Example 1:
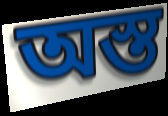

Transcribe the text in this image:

অস্ত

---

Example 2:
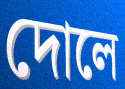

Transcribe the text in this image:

দোলে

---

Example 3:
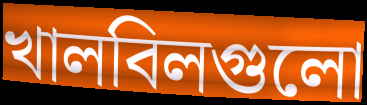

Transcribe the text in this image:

খালবিলগুলো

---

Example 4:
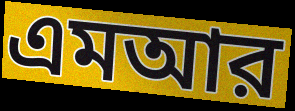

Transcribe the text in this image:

এমআর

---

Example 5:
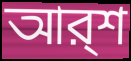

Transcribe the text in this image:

আর্‌শ